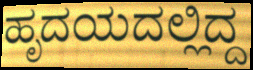
ಹೃದಯದಲ್ಲಿದ್ದ